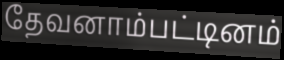
தேவனாம்பட்டினம்